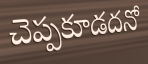
చెప్పకూడదనో